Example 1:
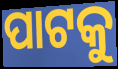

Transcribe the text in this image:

ପାଟକୁ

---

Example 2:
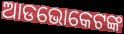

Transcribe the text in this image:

ଆଡଭୋକେଟଙ୍କ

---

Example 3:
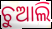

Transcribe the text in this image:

ଚୁଆଲି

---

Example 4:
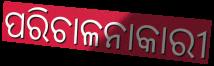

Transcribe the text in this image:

ପରିଚାଳନାକାରୀ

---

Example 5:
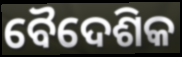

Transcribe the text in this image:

ବୈଦେଶିକ